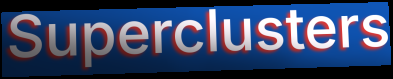
Superclusters